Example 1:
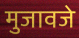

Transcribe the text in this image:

मुजावजे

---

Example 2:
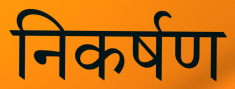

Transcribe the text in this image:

निकर्षण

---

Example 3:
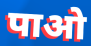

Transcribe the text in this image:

पाओ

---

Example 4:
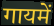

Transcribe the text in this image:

गायमें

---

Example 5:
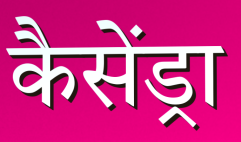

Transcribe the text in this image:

कैसेंड्रा